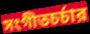
সংগীতচর্চার